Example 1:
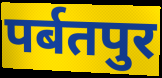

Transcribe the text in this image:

पर्बतपुर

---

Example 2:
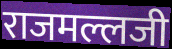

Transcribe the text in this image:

राजमल्लजी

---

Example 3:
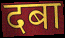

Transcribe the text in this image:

दबा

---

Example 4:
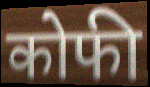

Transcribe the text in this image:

कोफी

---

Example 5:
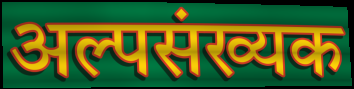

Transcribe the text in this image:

अल्‍पसंख्‍यक